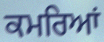
ਕਮਰਿਆਂ